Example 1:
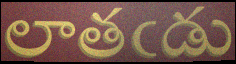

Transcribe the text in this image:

లాతఁడు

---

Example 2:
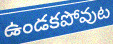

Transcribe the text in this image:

ఉండకపోవుట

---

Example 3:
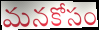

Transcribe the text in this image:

మనకోసం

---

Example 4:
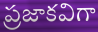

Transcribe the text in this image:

ప్రజాకవిగా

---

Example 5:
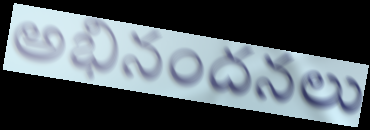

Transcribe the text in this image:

అభినందనలు